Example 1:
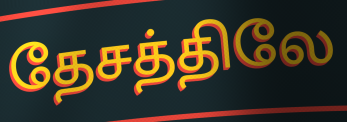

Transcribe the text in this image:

தேசத்திலே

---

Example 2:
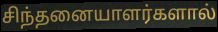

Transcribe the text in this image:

சிந்தனையாளர்களால்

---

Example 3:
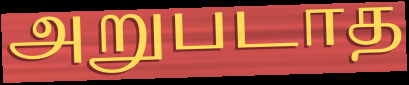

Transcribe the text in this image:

அறுபடாத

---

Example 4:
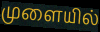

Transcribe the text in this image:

முளையில்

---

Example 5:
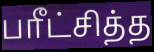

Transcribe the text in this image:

பரீட்சித்த